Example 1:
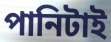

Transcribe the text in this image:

পানিটাই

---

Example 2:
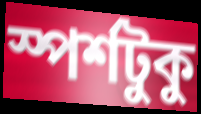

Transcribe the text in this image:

স্পর্শটুকু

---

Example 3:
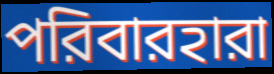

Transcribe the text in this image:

পরিবারহারা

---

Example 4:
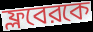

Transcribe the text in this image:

ফ্লবেরকে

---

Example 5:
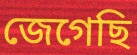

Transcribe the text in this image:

জেগেছি